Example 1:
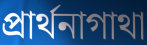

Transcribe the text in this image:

প্রার্থনাগাথা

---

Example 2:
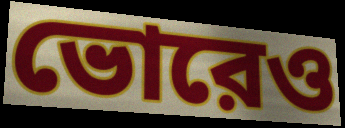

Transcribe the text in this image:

ভোরেও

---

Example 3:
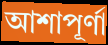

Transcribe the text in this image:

আশাপূর্ণা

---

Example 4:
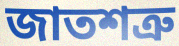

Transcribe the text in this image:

জাতশত্রু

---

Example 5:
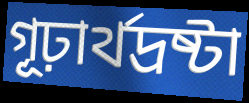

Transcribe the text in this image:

গূঢ়ার্থদ্রষ্টা